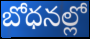
బోధనల్లో